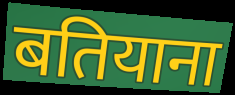
बतियाना